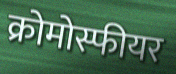
क्रोमोस्फीयर